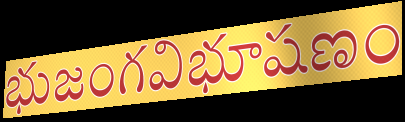
భుజంగవిభూషణం